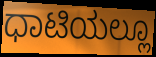
ಧಾಟಿಯಲ್ಲೂ